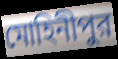
মোহিনীপুর